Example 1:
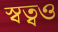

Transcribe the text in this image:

স্বত্বও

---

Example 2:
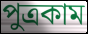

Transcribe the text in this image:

পুত্রকাম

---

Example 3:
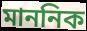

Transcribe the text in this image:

মাননিক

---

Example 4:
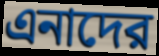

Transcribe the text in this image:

এনাদের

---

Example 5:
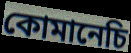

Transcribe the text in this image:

কোমানেচি